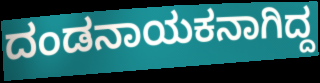
ದಂಡನಾಯಕನಾಗಿದ್ದ